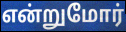
என்றுமோர்